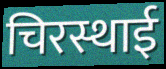
चिरस्थाई